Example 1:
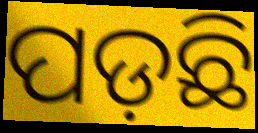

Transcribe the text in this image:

ପଡ଼ଛି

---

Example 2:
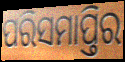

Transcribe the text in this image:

ପରିସମାପ୍ତିର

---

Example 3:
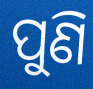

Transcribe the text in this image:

ପୁଣି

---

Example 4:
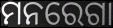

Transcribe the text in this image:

ମନରେଗା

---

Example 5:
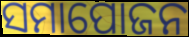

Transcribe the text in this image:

ସମାପୋଜନ